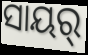
ସାୟର୍